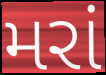
મરાં